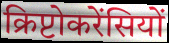
क्रिप्टोकरेंसियों